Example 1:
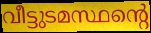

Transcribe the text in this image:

വീട്ടുടമസ്ഥന്റെ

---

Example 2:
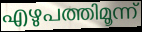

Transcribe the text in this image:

എഴുപത്തിമൂന്ന്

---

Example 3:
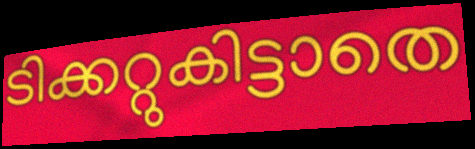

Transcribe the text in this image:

ടിക്കറ്റുകിട്ടാതെ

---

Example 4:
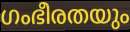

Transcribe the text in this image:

ഗംഭീരതയും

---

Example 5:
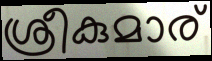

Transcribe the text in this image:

ശ്രീകുമാര്